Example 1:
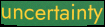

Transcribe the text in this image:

uncertainty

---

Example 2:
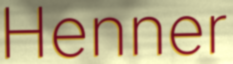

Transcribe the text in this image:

Henner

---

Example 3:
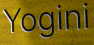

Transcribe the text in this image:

Yogini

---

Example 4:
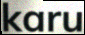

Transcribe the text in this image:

karu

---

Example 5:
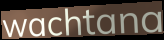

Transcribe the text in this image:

wachtana